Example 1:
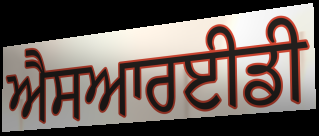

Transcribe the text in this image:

ਐਸਆਰਈਡੀ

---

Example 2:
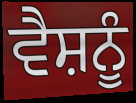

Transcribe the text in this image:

ਵੈਸ਼ਨੂੰ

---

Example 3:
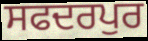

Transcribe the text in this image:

ਸਫਦਰਪੁਰ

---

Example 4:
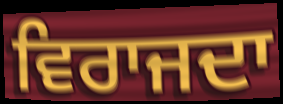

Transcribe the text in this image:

ਵਿਰਾਜਦਾ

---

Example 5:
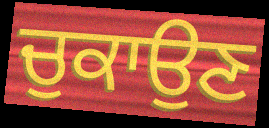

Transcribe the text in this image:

ਚੁਕਾਉਣ